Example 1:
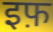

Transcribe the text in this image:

इफ़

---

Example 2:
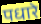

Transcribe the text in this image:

पधारे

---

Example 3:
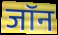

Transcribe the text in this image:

जॉन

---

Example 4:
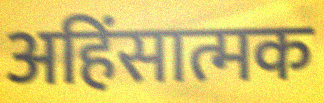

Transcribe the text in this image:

अहिंसात्मक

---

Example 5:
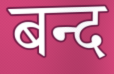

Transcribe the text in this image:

बन्द